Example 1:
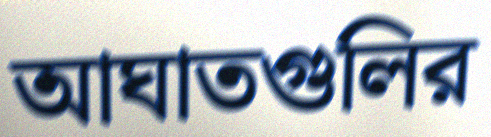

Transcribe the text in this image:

আঘাতগুলির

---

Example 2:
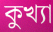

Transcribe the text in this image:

কুখ্যা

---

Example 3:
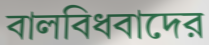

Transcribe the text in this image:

বালবিধবাদের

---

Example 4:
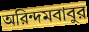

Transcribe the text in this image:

অরিন্দমবাবুর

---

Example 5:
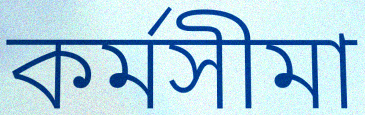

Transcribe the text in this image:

কর্মসীমা